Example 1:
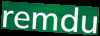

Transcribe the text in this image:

remdu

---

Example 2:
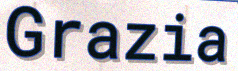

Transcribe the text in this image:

Grazia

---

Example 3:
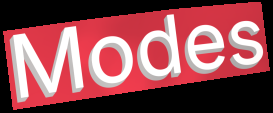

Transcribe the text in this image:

Modes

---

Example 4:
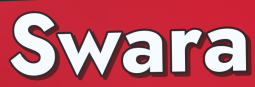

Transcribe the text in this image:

Swara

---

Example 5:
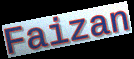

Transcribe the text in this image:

Faizan